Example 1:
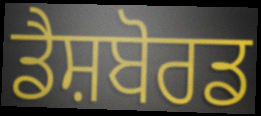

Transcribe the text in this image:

ਡੈਸ਼ਬੋਰਡ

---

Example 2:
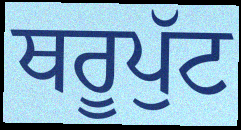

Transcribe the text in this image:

ਥਰੂਪੁੱਟ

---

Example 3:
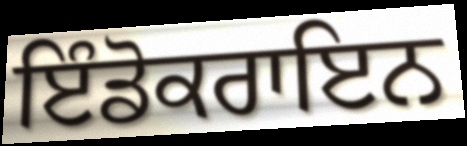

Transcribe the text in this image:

ਇੰਡੋਕਰਾਇਨ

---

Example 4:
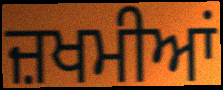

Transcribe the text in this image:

ਜ਼ਖਮੀਆਂ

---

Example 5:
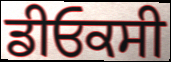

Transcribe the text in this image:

ਡੀਓਕਸੀ